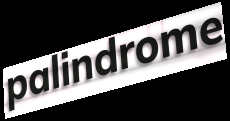
palindrome